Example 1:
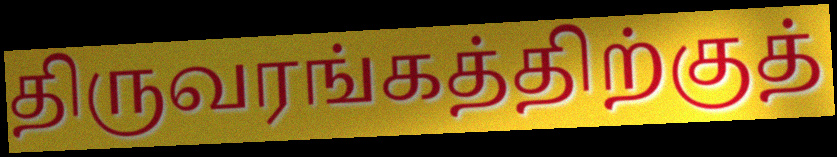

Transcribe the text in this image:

திருவரங்கத்திற்குத்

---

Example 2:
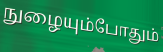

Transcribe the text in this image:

நுழையும்போதும்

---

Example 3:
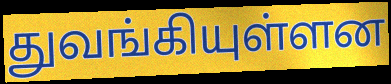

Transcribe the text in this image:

துவங்கியுள்ளன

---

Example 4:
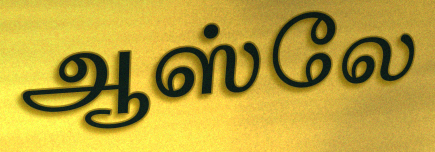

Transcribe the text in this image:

ஆஸ்லே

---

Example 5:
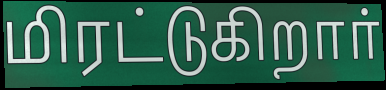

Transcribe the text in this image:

மிரட்டுகிறார்